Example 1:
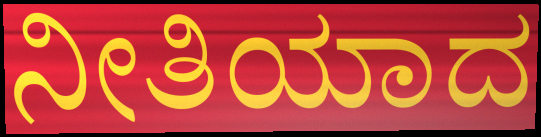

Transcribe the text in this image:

ನೀತಿಯಾದ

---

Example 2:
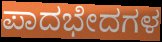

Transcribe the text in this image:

ಪಾದಭೇದಗಳ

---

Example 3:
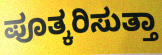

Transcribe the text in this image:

ಪೂತ್ಕರಿಸುತ್ತಾ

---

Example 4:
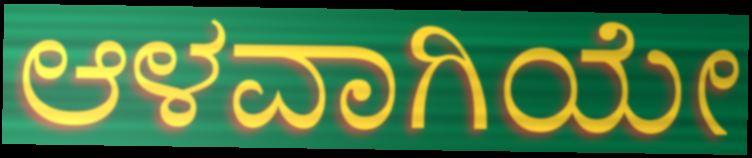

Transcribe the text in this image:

ಆಳವಾಗಿಯೇ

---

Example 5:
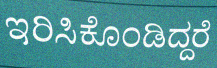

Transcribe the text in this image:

ಇರಿಸಿಕೊಂಡಿದ್ದರೆ